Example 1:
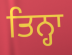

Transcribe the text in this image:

ਤਿਨ੍ਹ੍ਹਾ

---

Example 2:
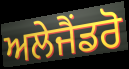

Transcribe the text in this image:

ਅਲੇਜੈਂਡਰੋ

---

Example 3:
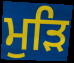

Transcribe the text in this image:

ਮੁੜਿ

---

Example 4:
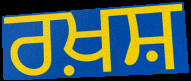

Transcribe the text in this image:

ਰਖ਼ਸ਼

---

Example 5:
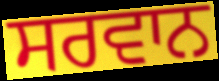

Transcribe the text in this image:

ਸਰਵਾਨ